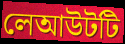
লেআউটটি